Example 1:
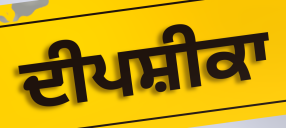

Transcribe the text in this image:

ਦੀਪਸ਼ੀਕਾ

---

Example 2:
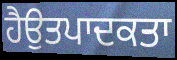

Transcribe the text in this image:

ਹੈਉਤਪਾਦਕਤਾ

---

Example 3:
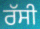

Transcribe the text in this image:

ਰੱਸੀ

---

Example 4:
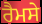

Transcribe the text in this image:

ਰੈਮਸੇ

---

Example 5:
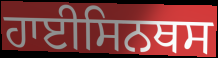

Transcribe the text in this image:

ਹਾਈਸਿਨਥਸ